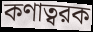
কণাত্বরক